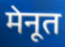
मेनूत